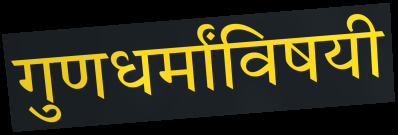
गुणधर्मांविषयी